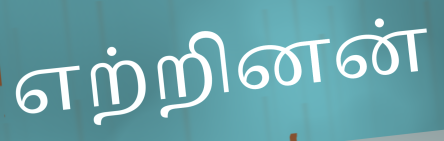
எற்றினன்